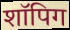
शॉपिग